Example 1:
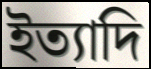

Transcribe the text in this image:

ইত্যাদি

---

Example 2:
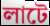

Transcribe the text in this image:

লাটে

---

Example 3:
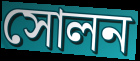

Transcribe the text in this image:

সোলন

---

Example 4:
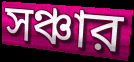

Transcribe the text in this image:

সঞ্চার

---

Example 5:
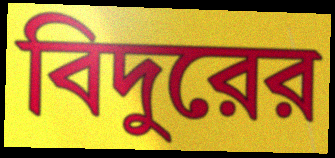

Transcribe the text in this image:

বিদুরের